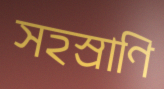
সহস্রাণি